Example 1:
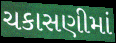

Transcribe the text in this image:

ચકાસણીમાં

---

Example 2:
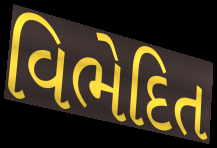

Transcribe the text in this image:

વિભેદિત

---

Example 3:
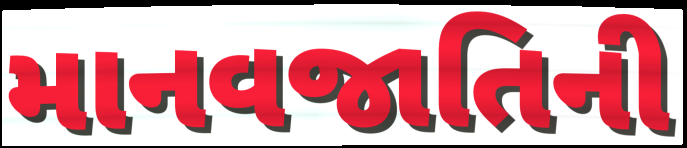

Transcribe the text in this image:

માનવજાતિની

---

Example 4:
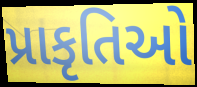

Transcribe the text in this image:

પ્રાકૃતિઓ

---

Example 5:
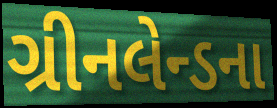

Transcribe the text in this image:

ગ્રીનલેન્ડના